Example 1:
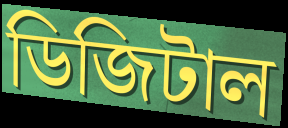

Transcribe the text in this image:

ডিজিটাল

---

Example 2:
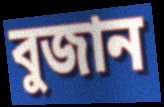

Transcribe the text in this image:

বুজান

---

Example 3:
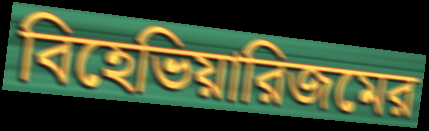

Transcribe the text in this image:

বিহেভিয়ারিজমের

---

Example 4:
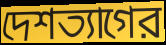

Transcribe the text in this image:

দেশত্যাগের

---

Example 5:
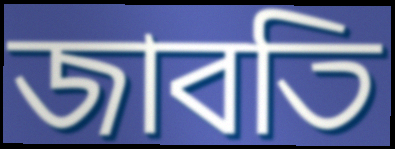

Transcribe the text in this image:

জাবতি